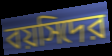
বয়সিদের